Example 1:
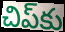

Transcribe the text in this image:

చిప్‌కు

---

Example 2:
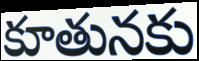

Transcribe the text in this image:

కూతునకు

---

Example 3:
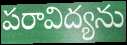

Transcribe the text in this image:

పరావిద్యను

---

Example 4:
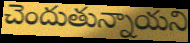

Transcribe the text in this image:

చెందుతున్నాయని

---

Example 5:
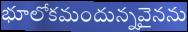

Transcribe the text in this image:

భూలోకమందున్నవైనను